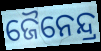
ଜୈନେନ୍ଦ୍ର